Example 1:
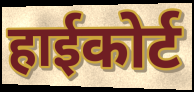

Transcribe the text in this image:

हाईकोर्ट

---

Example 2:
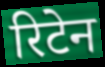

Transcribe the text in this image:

रिटेन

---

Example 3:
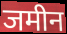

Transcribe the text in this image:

जमीन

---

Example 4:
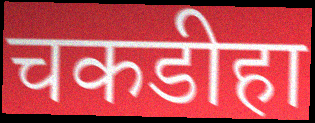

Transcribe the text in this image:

चकडीहा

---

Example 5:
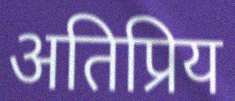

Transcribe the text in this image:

अतिप्रिय